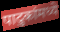
पादुकांमध्ये